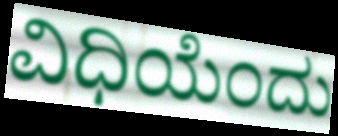
ವಿಧಿಯೆಂದು